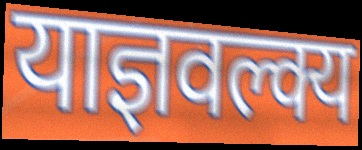
याज्ञवल्क्य